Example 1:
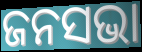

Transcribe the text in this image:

ଜନସଭା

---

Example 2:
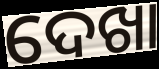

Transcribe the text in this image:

ଦେଖା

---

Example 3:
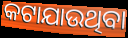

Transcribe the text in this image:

କଟାଯାଉଥିବା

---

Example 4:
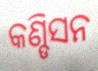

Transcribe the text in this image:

କଣ୍ଡିସନ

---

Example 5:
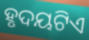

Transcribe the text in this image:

ହୃଦୟଟିଏ